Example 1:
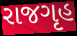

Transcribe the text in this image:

રાજગૃહ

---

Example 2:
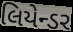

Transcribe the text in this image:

લિયેન્ડર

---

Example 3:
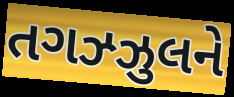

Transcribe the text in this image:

તગઝ્ઝુલને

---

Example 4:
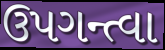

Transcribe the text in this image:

ઉપગન્ત્વા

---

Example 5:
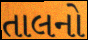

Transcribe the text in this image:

તાલનો